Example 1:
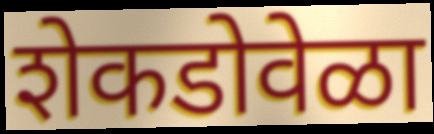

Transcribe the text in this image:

शेकडोवेळा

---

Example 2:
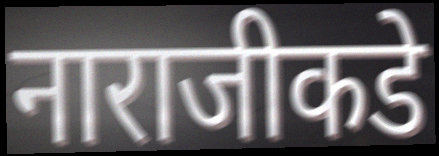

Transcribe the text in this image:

नाराजीकडे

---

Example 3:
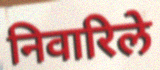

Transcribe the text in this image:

निवारिले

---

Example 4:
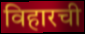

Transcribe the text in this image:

विहारची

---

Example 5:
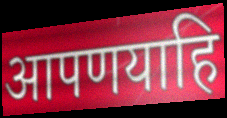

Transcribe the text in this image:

आपणयाहि